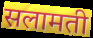
सलामती